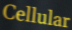
Cellular